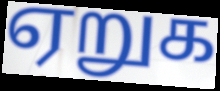
ஏறுக